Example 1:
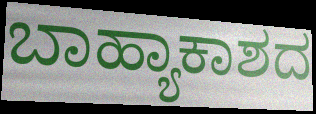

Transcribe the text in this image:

ಬಾಹ್ಯಾಕಾಶದ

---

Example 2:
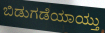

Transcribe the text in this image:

ಬಿಡುಗಡೆಯಾಯ್ತು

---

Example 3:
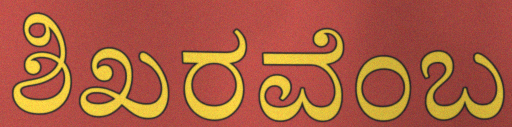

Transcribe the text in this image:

ಶಿಖರವೆಂಬ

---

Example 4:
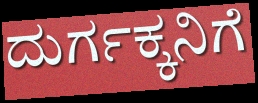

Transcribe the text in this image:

ದುರ್ಗಕ್ಕನಿಗೆ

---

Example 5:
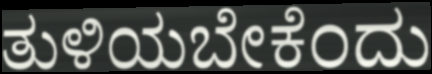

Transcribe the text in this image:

ತುಳಿಯಬೇಕೆಂದು